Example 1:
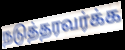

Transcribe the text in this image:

நடுத்தரவர்க்க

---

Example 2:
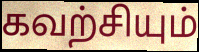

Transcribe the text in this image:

கவற்சியும்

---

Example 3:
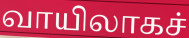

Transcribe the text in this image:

வாயிலாகச்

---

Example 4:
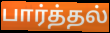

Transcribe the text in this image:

பார்த்தல்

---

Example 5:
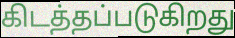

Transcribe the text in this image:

கிடத்தப்படுகிறது